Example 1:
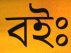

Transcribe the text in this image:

বইঃ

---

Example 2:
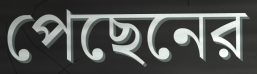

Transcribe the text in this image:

পেছেনের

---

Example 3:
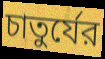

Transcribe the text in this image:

চাতুর্যের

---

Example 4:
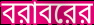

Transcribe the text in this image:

বরাবরের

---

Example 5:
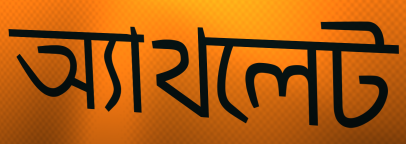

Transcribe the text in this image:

অ্যাথলেট